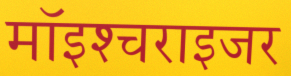
मॉइश्‍चराइजर